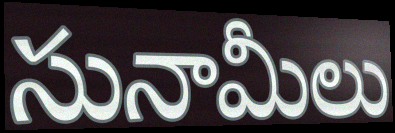
సునామీలు